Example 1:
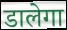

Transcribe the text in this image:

डालेगा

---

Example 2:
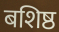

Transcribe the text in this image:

बशिष्ठ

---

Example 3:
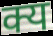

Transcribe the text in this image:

क्य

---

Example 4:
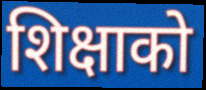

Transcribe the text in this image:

शिक्षाको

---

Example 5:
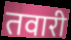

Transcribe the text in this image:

तवारी